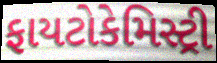
ફાયટોકેમિસ્ટ્રી